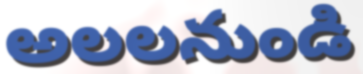
అలలనుండి